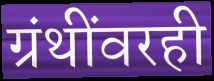
ग्रंथींवरही